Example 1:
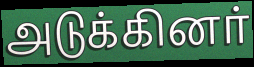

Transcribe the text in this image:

அடுக்கினர்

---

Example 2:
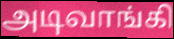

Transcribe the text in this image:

அடிவாங்கி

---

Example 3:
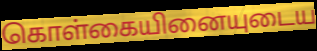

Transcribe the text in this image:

கொள்கையினையுடைய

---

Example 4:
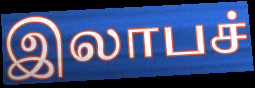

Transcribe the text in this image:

இலாபச்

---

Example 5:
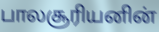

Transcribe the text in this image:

பாலசூரியனின்